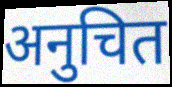
अनुचित